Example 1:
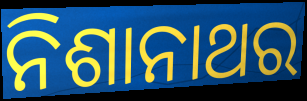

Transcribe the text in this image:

ନିଶାନାଥର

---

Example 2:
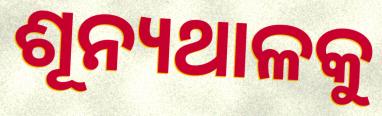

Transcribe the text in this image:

ଶୂନ୍ୟଥାଳକୁ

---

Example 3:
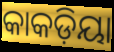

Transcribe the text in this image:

କାକଡ଼ିୟା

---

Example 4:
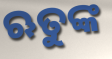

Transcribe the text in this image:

ଋତୁଙ୍କ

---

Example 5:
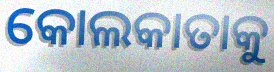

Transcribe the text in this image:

କୋଲକାତାକୁ